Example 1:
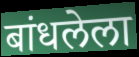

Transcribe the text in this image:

बांधलेला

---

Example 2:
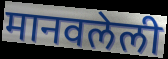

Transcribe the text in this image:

मानवलेली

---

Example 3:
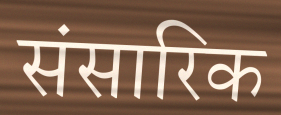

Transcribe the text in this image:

संसारिक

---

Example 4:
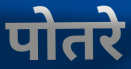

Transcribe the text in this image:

पोतरे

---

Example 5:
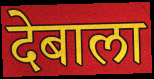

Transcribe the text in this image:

देबाला